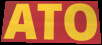
ATO